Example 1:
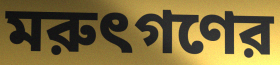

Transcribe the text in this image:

মরুৎগণের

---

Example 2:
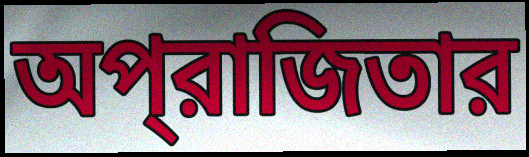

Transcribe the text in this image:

অপ্‌রাজিতার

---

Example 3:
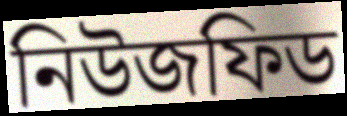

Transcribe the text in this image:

নিউজফিড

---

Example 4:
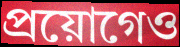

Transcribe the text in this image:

প্রয়োগেও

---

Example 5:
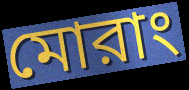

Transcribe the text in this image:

মোরাং